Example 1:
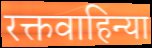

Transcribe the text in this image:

रक्तवाहिन्या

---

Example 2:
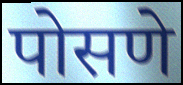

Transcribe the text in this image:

पोसणे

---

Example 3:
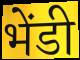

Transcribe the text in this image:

भेंडी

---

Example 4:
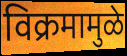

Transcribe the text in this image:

विक्रमामुळे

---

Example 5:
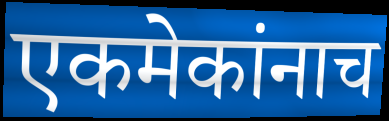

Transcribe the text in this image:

एकमेकांनाच